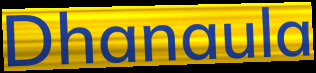
Dhanaula